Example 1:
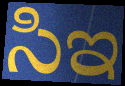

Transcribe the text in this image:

సిఇ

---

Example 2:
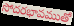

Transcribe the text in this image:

సోదరభావముతో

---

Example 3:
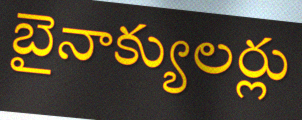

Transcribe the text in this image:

బైనాక్యులర్లు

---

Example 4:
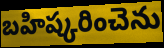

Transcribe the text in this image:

బహిష్కరించెను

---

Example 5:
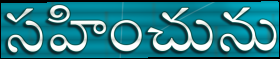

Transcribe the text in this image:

సహించును